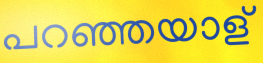
പറഞ്ഞയാള്